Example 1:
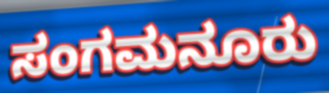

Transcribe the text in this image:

ಸಂಗಮನೂರು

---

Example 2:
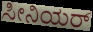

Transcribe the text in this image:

ಸೀನಿಯರ್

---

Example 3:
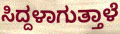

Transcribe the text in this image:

ಸಿದ್ದಳಾಗುತ್ತಾಳೆ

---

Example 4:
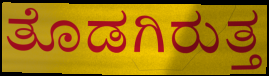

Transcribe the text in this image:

ತೊಡಗಿರುತ್ತ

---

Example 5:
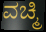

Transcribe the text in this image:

ವಚ್ಮಿ